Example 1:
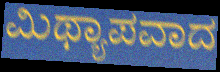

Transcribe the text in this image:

ಮಿಥ್ಯಾಪವಾದ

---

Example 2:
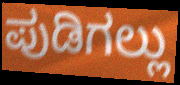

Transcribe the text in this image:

ಪುಡಿಗಲ್ಲು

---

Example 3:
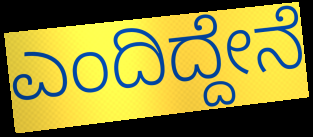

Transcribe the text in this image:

ಎಂದಿದ್ದೇನೆ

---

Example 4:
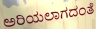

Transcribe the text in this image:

ಅರಿಯಲಾಗದಂತೆ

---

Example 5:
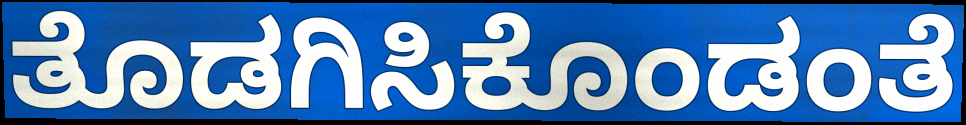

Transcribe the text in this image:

ತೊಡಗಿಸಿಕೊಂಡಂತೆ